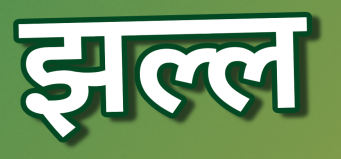
झल्ल